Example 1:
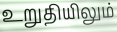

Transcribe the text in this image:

உறுதியிலும்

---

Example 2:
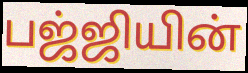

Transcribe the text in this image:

பஜ்ஜியின்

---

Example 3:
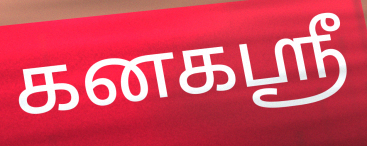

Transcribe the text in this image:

கனகஸ்ரீ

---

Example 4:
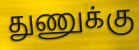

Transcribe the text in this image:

துணுக்கு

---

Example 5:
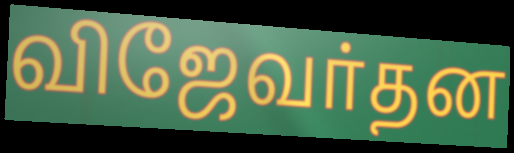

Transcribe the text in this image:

விஜேவர்தன